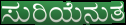
ಸುರಿಯೆನುತ